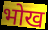
भोख